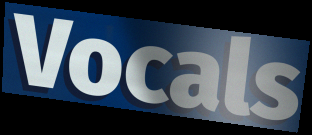
Vocals